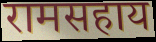
रामसहाय